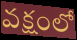
వక్షంలో